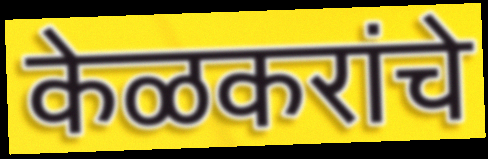
केळकरांचे